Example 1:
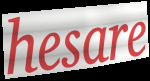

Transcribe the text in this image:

hesare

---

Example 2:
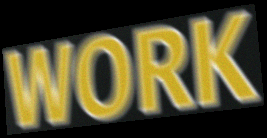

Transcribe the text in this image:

WORK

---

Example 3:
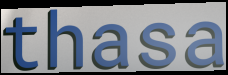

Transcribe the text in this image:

thasa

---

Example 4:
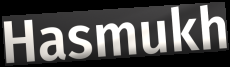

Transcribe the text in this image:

Hasmukh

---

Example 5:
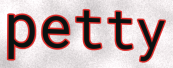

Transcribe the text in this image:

petty